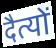
दैत्यों